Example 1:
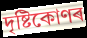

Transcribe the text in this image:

দৃষ্টিকোণৰ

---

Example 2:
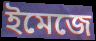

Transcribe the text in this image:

ইমেজে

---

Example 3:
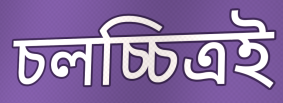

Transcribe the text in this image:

চলচ্চিত্ৰই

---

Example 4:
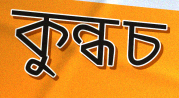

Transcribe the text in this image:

কুন্ধচ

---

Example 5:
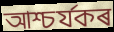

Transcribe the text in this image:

আশ্চৰ্যকৰ